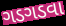
ગડગડવા